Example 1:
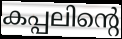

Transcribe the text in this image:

കപ്പലിന്റെ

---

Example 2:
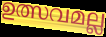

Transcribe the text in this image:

ഉത്സവമല്ല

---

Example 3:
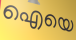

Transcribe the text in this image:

ഐയെ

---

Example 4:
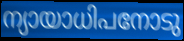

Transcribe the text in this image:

ന്യായാധിപനോടു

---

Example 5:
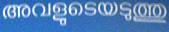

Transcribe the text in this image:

അവളുടെയടുത്തു